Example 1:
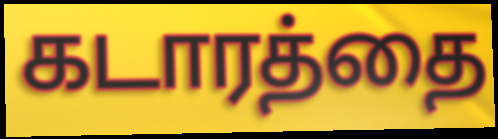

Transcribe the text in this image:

கடாரத்தை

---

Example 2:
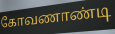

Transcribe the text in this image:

கோவணாண்டி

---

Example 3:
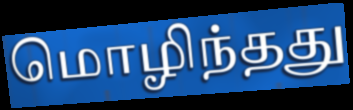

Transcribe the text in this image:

மொழிந்தது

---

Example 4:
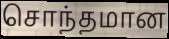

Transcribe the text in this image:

சொந்தமான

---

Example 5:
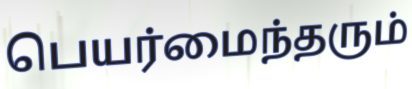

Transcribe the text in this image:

பெயர்மைந்தரும்